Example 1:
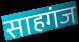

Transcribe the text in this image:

साहगंज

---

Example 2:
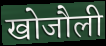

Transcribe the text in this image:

खोजौली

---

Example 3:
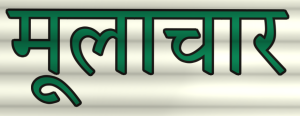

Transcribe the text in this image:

मूलाचार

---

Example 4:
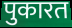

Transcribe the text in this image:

पुकारत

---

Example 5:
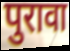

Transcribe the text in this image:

पुरावा